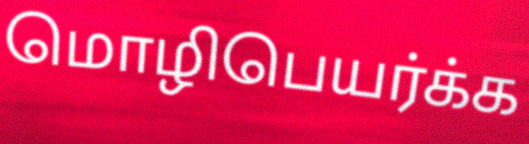
மொழிபெயர்க்க